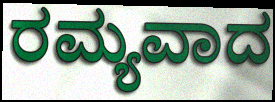
ರಮ್ಯವಾದ